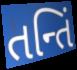
તન્તિં